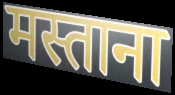
मस्ताना